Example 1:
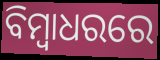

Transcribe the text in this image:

ବିମ୍ୱାଧରରେ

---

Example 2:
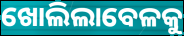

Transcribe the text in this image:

ଖୋଲିଲାବେଳକୁ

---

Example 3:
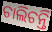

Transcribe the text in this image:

ଚାଲିଚନ୍ତି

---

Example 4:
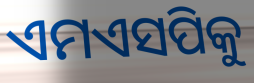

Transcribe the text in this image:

ଏମଏସପିକୁ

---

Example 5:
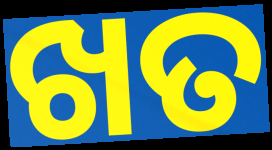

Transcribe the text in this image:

ଖତ